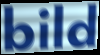
bild